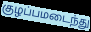
குழப்பமடைந்து